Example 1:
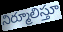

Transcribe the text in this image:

నిర్మూలిస్తూ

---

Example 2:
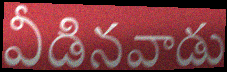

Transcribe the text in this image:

వీడినవాడు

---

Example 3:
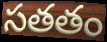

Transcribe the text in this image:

సతతం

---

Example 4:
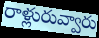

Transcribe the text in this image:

రాళ్లురువ్వారు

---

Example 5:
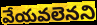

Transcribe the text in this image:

వేయవలెనని